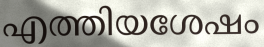
എത്തിയശേഷം